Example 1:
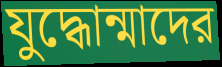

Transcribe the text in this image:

যুদ্ধোন্মাদের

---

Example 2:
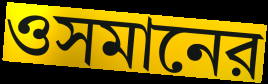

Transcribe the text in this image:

ওসমানের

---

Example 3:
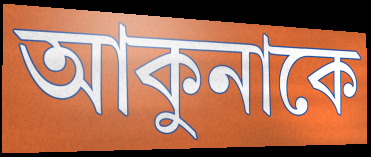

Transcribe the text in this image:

আকুনাকে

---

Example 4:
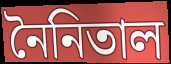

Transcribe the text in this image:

নৈনিতাল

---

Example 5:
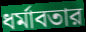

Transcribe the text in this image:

ধর্মাবতার